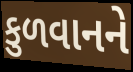
કુળવાનને